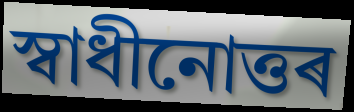
স্বাধীনোত্তৰ